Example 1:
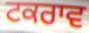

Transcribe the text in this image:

ਟਕਰਾਵ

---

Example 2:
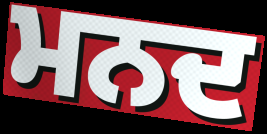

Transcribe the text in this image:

ਮਨਦ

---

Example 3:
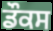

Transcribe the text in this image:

ਡੌਕਸ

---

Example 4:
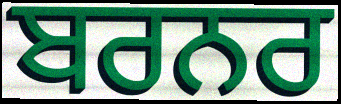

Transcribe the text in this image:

ਬਰਨਰ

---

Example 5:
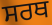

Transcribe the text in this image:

ਸਰਥ